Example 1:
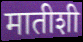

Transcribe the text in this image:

मातीशी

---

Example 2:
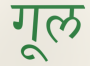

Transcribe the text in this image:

गूल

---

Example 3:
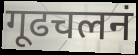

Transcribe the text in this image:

गूढचलनं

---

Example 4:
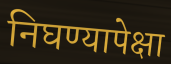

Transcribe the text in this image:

निघण्यापेक्षा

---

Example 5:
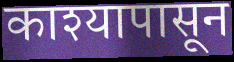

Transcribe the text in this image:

काश्यापासून